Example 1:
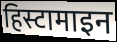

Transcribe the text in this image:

हिस्टामाइन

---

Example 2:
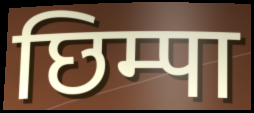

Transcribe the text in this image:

छिम्पा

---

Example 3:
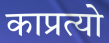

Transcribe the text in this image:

काप्रत्यो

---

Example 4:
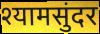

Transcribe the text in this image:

श्यामसुंदर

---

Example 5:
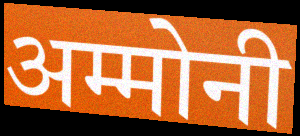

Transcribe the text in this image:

अम्मोनी